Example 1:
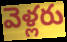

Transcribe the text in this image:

వెళ్లరు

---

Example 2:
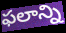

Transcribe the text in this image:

ఫలాన్ని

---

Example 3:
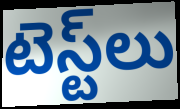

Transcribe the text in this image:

టెస్ట్‌లు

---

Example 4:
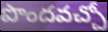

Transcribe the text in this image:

పొందవచ్చో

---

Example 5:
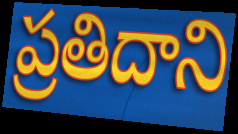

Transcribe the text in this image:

ప్రతిదాని